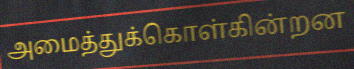
அமைத்துக்கொள்கின்றன